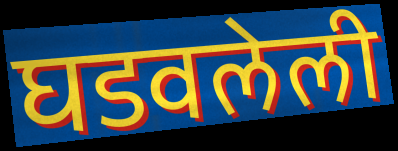
घडवलेली